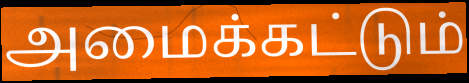
அமைக்கட்டும்